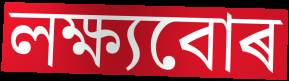
লক্ষ্যবোৰ